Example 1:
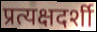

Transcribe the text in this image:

प्रत्यक्षदर्शी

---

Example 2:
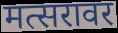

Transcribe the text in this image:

मत्सरावर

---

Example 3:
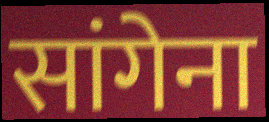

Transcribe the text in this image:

सांगेना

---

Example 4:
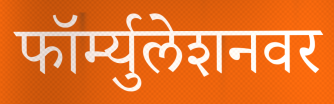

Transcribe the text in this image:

फॉर्म्युलेशनवर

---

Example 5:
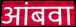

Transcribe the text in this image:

आंबवा